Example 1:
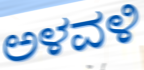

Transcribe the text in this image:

ಅಳವಳಿ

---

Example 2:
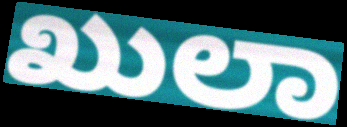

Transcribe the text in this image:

ಖುಲಾ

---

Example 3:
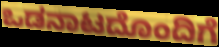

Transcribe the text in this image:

ಒಡನಾಟದೊಂದಿಗೆ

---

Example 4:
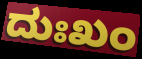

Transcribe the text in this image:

ದುಃಖಂ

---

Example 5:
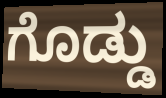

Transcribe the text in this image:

ಗೊಡ್ಡು